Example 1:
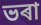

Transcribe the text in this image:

ভৰা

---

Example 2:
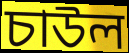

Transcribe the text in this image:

চাউল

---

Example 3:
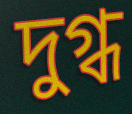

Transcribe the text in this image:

দুগ্ধ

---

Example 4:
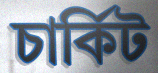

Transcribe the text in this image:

চাৰ্কিট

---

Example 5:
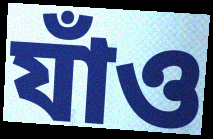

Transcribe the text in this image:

যাঁও